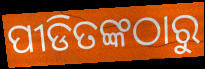
ପୀଡିତଙ୍କଠାରୁ